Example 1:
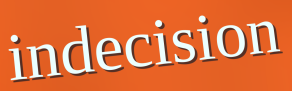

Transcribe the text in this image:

indecision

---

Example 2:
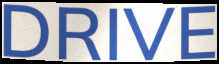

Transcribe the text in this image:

DRIVE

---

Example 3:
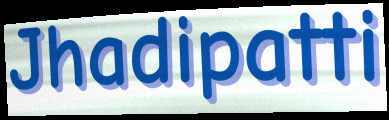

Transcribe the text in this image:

Jhadipatti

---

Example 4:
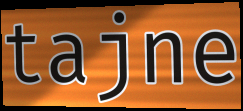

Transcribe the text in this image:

tajne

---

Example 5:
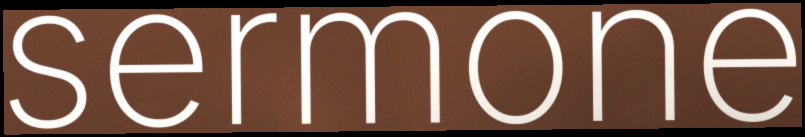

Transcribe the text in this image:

sermone